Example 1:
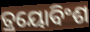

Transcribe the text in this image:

ତ୍ରୟୋବିଂଶ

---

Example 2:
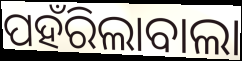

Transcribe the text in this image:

ପହଁରିଲାବାଲା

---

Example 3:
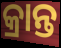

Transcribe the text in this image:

କ୍ରାନ୍ତ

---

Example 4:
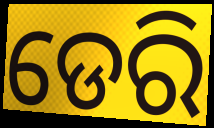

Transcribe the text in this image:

ଡେରି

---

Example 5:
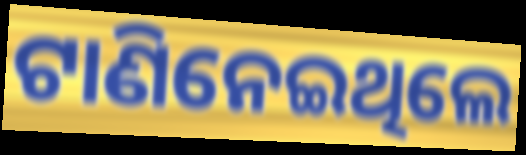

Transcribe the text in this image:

ଟାଣିନେଇଥିଲେ